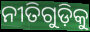
ନୀତିଗୁଡ଼ିକୁ